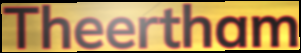
Theertham